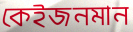
কেইজনমান